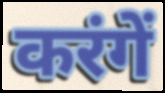
करंगें